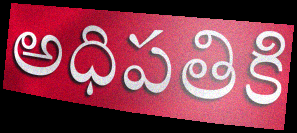
అధిపతికి